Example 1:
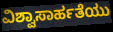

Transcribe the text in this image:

ವಿಶ್ವಾಸಾರ್ಹತೆಯು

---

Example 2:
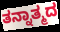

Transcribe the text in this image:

ತನ್ನಾತ್ಮದ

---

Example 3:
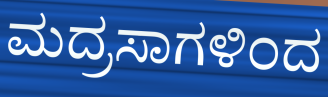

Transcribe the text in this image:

ಮದ್ರಸಾಗಳಿಂದ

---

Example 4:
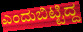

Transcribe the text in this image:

ಎಂದುಬಿಟ್ಟಿದ್ದ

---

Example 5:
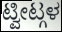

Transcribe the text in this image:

ಟ್ವೀಟ್ಗಳ